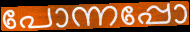
പോന്നപ്പോ